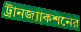
ট্রানজ্যাকশনের